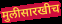
मुलीसारखीच